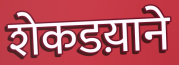
शेकडय़ाने